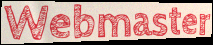
Webmaster